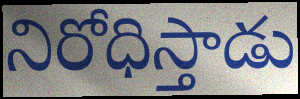
నిరోధిస్తాడు